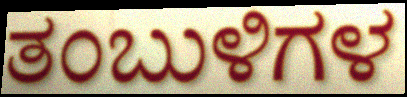
ತಂಬುಳಿಗಳ